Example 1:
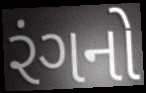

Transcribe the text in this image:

રંગનો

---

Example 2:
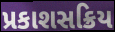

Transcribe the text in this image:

પ્રકાશસક્રિય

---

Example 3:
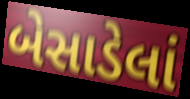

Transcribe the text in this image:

બેસાડેલાં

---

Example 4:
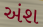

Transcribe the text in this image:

અંશ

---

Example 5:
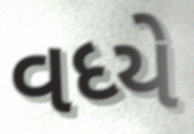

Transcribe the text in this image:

વધ્યે